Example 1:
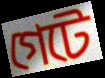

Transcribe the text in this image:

গেটে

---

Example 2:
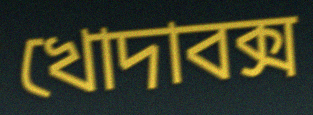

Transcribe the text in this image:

খোদাবক্স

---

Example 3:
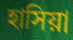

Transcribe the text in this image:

হাসিয়া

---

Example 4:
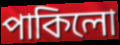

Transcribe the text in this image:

পাকিলো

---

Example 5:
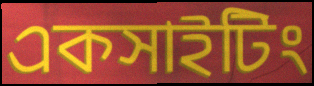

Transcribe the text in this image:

একসাইটিং